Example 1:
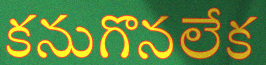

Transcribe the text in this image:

కనుగొనలేక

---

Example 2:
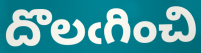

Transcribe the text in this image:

దొలఁగించి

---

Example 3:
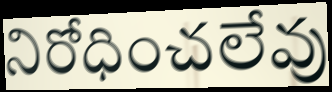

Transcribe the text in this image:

నిరోధించలేవు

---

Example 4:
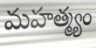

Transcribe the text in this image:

మహత్మ్యం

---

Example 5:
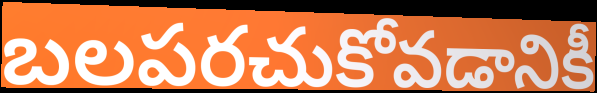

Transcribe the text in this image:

బలపరచుకోవడానికీ